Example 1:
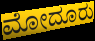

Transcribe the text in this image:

ಮೋದೂರು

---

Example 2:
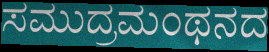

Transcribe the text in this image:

ಸಮುದ್ರಮಂಥನದ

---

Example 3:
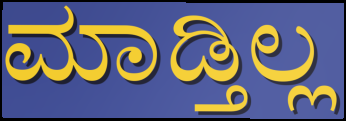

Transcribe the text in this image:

ಮಾಡ್ತಿಲ್ಲ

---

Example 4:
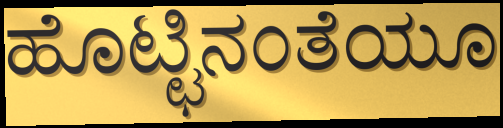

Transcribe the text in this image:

ಹೊಟ್ಟಿನಂತೆಯೂ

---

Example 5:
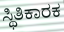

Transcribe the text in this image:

ಸ್ಥಿತಿಕಾರಕ